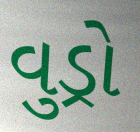
વુડ્રો